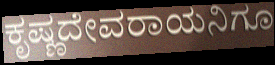
ಕೃಷ್ಣದೇವರಾಯನಿಗೂ